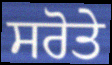
ਸਰੋਤੇ